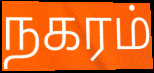
நகரம்